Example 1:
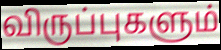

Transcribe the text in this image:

விருப்புகளும்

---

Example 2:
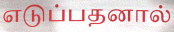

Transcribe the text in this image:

எடுப்பதனால்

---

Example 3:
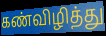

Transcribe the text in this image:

கண்விழித்து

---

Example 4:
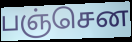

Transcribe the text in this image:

பஞ்சென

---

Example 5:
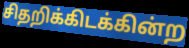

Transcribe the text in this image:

சிதறிக்கிடக்கின்ற